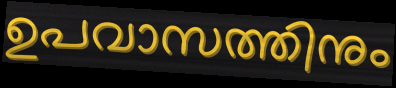
ഉപവാസത്തിനും